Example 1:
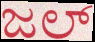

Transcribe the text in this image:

ಜಲ್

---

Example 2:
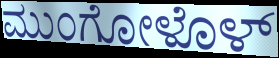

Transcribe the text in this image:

ಮುಂಗೋಳೊಳ್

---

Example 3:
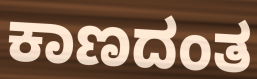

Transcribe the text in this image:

ಕಾಣದಂತ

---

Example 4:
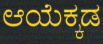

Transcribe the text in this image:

ಆಯೆಕ್ಕಡ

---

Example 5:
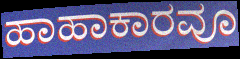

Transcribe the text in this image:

ಹಾಹಾಕಾರವೂ